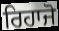
ਰਿਹਾਜੋ